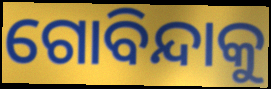
ଗୋବିନ୍ଦାକୁ